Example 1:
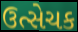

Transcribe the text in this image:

ઉત્સેચક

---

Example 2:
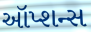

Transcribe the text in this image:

ઑપ્શન્સ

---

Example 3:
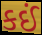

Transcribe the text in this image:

કઈં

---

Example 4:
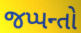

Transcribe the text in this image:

જપ્પન્તો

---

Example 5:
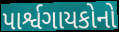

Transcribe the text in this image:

પાર્શ્વગાયકોનો